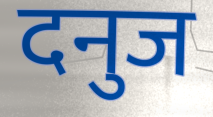
दनुज